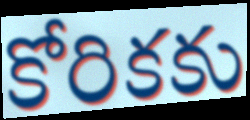
కోరికకు